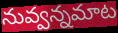
నువ్వన్నమాట